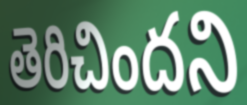
తెరిచిందని